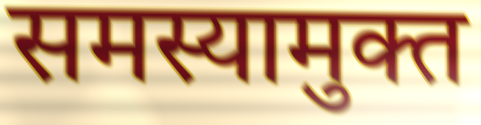
समस्यामुक्त